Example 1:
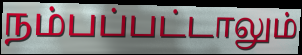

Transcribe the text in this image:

நம்பப்பட்டாலும்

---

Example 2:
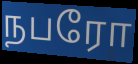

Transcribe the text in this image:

நபரோ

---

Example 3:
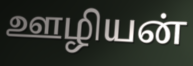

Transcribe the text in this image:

ஊழியன்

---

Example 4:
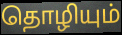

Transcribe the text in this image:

தொழியும்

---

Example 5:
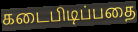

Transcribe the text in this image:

கடைபிடிப்பதை